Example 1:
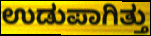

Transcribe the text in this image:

ಉಡುಪಾಗಿತ್ತು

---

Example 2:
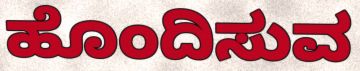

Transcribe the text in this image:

ಹೊಂದಿಸುವ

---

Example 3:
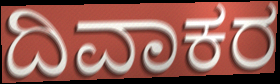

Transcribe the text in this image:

ದಿವಾಕರ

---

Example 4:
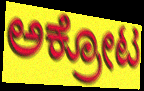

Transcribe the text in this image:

ಅಕ್ರೋಟ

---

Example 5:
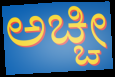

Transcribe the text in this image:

ಅಚ್ಚೀ